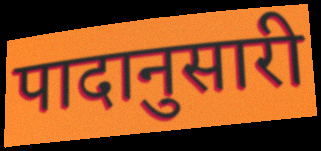
पादानुसारी